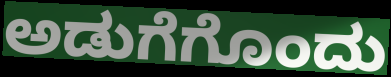
ಅಡುಗೆಗೊಂದು